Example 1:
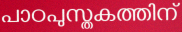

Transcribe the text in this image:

പാഠപുസ്തകത്തിന്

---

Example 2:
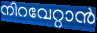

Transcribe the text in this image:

നിറവേറ്റാൻ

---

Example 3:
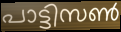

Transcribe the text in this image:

പാട്ടിസൺ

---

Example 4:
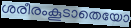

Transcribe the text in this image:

ശരീരംകൂടാതെയോ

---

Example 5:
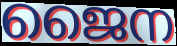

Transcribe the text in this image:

ജൈന